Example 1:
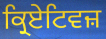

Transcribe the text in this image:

ਕ੍ਰਿਏਟਿਵਜ਼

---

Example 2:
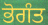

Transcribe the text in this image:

ਭੋਗੰਤ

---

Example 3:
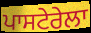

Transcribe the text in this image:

ਪਾਸਟੇਰੇਲਾ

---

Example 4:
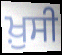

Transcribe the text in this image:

ਖ਼ੁਸੀ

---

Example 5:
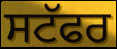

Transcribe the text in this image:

ਸਟੱਫਰ